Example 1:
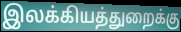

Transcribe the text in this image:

இலக்கியத்துறைக்கு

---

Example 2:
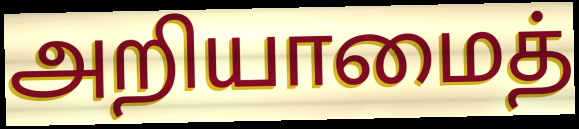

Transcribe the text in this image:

அறியாமைத்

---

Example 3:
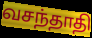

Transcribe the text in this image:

வசந்தாதி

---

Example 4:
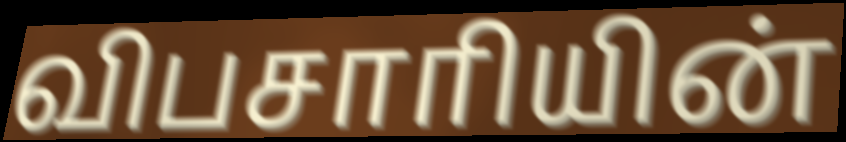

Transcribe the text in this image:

விபசாரியின்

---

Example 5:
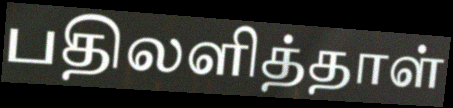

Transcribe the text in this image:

பதிலளித்தாள்